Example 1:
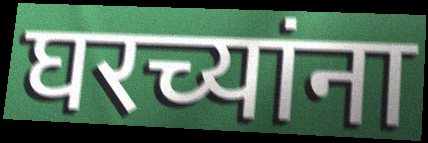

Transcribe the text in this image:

घरच्यांना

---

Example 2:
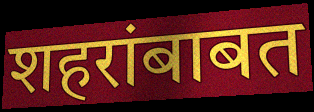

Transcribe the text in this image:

शहरांबाबत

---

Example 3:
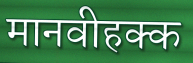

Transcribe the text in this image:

मानवीहक्क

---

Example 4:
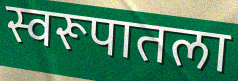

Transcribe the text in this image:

स्वरूपातला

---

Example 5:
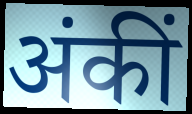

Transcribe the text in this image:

अंकीं